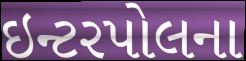
ઇન્ટરપોલના